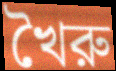
খৈরু